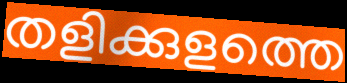
തളിക്കുളത്തെ